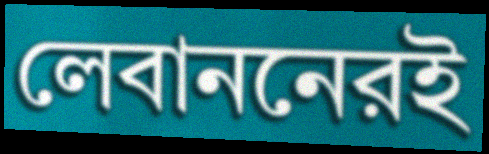
লেবাননেরই